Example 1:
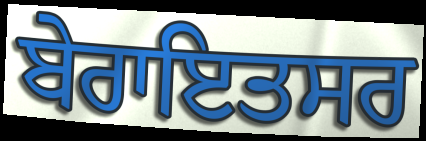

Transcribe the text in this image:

ਬੇਰਾਇਤਸਰ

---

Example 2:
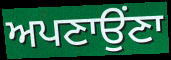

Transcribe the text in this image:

ਅਪਣਾਉਂਣਾ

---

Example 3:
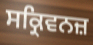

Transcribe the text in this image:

ਸਕ੍ਰਿਵਨਜ਼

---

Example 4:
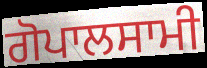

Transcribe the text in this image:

ਗੋਪਾਲਸਾਮੀ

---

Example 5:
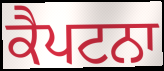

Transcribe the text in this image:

ਕੈਪਟਨਾ